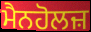
ਮੈਨਹੋਲਜ਼